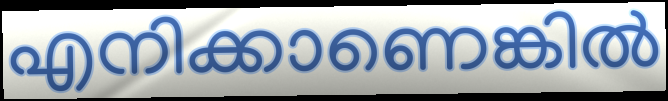
എനിക്കാണെങ്കിൽ